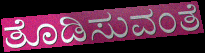
ತೊಡಿಸುವಂತೆ